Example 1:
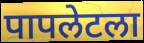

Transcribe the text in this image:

पापलेटला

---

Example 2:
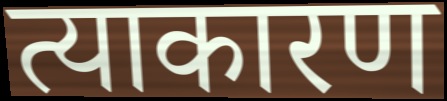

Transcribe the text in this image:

त्याकारण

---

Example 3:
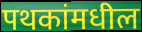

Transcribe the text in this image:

पथकांमधील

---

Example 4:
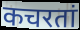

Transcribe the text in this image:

कचरतां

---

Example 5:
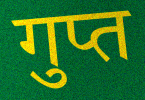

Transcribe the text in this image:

गुप्त